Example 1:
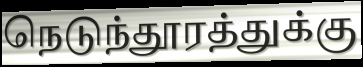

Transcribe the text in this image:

நெடுந்தூரத்துக்கு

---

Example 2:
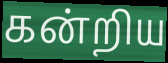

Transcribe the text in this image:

கன்றிய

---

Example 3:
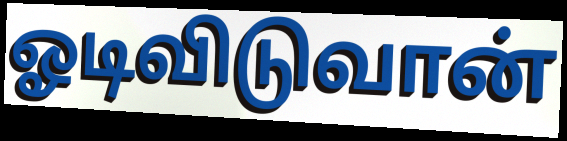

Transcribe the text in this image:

ஓடிவிடுவான்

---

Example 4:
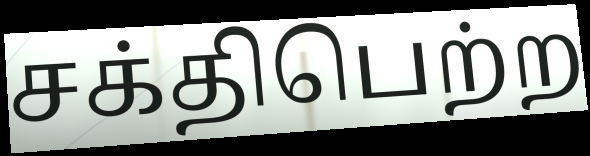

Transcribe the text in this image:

சக்திபெற்ற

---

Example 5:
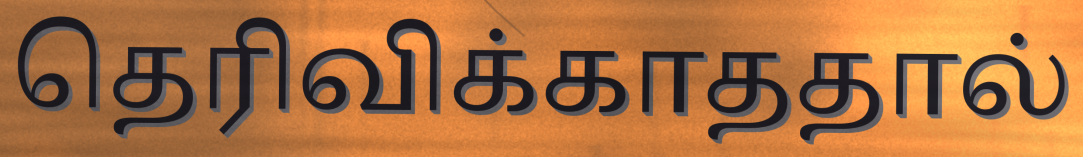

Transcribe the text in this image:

தெரிவிக்காததால்